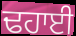
ਢਹਾਈ